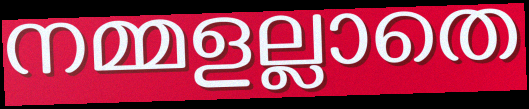
നമ്മളല്ലാതെ